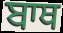
ਬਾਥ